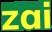
zai